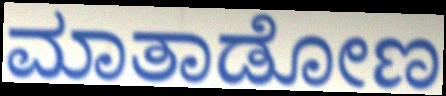
ಮಾತಾಡೋಣ